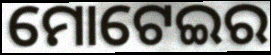
ମୋଟେଇର